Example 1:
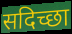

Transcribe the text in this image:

सदिच्छा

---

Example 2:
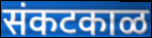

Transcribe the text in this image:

संकटकाळ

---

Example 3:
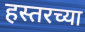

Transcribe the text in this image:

हस्तरच्या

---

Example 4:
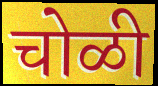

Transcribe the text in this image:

चोळी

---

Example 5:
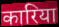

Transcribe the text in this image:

कारिया